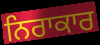
ਨਿਰਾਕਾਰ